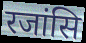
रजांसि